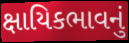
ક્ષાયિકભાવનું